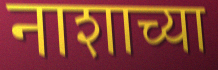
नाशाच्या